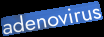
adenovirus